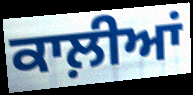
ਕਾਲ਼ੀਆਂ